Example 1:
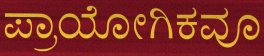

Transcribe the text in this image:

ಪ್ರಾಯೋಗಿಕವೂ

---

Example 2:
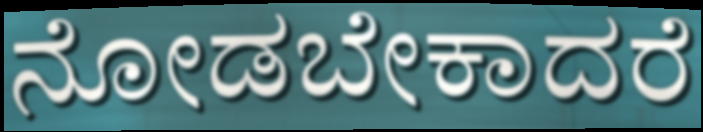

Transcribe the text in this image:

ನೋಡಬೇಕಾದರೆ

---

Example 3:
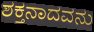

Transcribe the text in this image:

ಶಕ್ತನಾದವನು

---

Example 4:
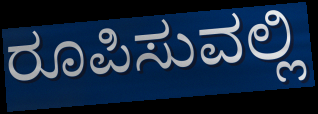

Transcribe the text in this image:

ರೂಪಿಸುವಲ್ಲಿ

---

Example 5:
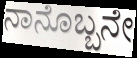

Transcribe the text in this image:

ನಾನೊಬ್ಬನೇ